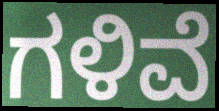
ಗಳಿವೆ